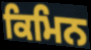
ਕਿਮਿਨ